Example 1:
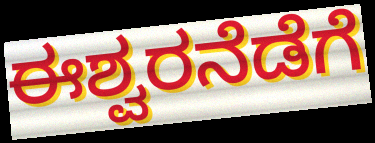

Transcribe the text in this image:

ಈಶ್ವರನೆಡೆಗೆ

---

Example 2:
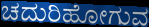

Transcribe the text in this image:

ಚದುರಿಹೋಗುವ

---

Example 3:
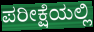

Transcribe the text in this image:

ಪರೀಕ್ಷೆಯಲ್ಲಿ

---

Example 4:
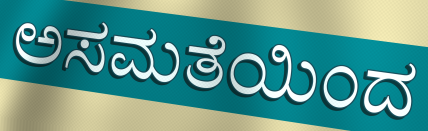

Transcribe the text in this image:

ಅಸಮತೆಯಿಂದ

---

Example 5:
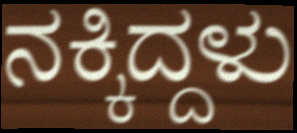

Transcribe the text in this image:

ನಕ್ಕಿದ್ದಳು